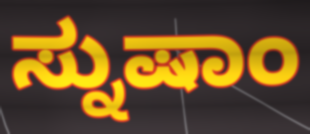
ಸ್ನುಷಾಂ